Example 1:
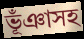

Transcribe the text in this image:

ভূঁঞাসহ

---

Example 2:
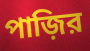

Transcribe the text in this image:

পাজ়ির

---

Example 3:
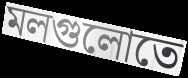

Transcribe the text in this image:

মলগুলোতে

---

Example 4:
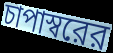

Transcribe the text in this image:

চাপাস্বরের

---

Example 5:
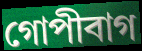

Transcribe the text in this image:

গোপীবাগ